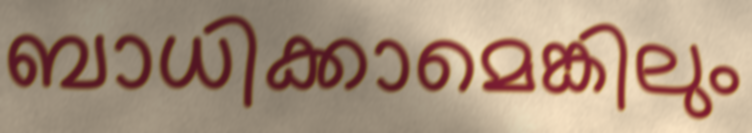
ബാധിക്കാമെങ്കിലും